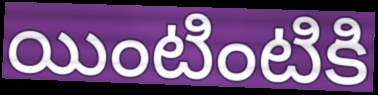
యింటింటికి